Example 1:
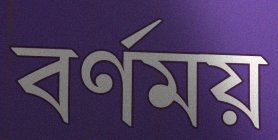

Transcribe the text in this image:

বর্ণময়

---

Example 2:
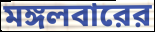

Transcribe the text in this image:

মঙ্গলবারের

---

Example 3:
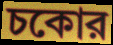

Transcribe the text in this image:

চকোর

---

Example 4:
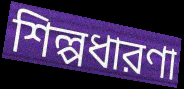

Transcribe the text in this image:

শিল্পধারণা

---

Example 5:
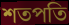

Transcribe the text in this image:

শতপতি